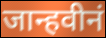
जान्हवीनं